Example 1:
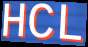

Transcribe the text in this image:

HCL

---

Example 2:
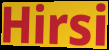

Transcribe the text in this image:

Hirsi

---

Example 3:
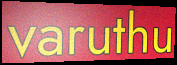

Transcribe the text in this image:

varuthu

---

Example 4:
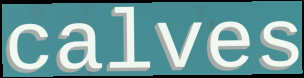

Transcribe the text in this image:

calves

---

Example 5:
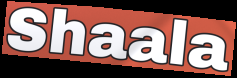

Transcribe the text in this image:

Shaala